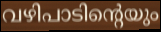
വഴിപാടിന്റെയും